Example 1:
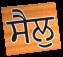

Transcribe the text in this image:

ਸੈਲੁ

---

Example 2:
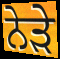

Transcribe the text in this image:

ਨੇਡ਼ੇ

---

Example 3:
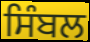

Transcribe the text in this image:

ਸਿੰਬਲ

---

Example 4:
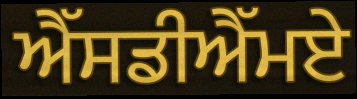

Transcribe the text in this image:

ਐੱਸਡੀਐੱਮਏ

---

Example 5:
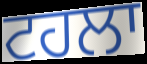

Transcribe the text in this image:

ਟਹਲਾ